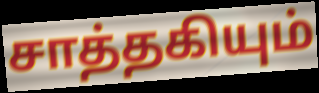
சாத்தகியும்